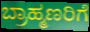
ಬ್ರಾಹ್ಮಣರಿಗೆ